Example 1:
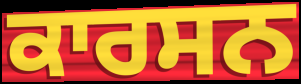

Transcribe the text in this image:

ਕਾਰਸਨ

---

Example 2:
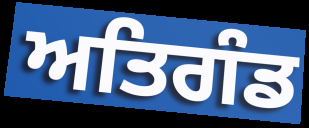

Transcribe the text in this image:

ਅਤਿਗੰਡ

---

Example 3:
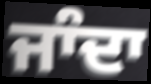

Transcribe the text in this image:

ਜਾੰਦਾ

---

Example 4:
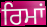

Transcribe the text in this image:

ਰਿਮਾਂ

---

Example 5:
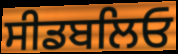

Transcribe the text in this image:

ਸੀਡਬਲਿਓ